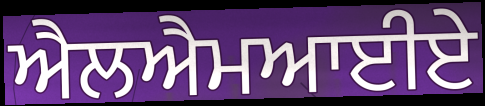
ਐਲਐਮਆਈਏ